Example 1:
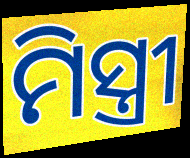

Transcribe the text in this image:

ମିସ୍ତ୍ରୀ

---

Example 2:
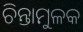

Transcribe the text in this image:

ଚିନ୍ତାମୁଳକ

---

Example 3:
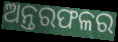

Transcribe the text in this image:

ଅନ୍ତରଫଳର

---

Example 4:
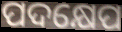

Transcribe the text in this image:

ପଦକ୍ଷେପ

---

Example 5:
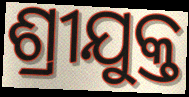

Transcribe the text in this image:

ଶ୍ରୀଯୁକ୍ତ